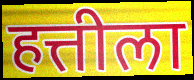
हत्तीला